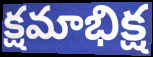
క్షమాభిక్ష